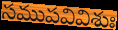
సముపవివిశుః